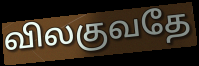
விலகுவதே